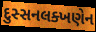
દુસ્સનલક્ખણેન